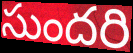
సుందరి